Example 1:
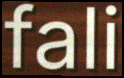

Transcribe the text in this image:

fali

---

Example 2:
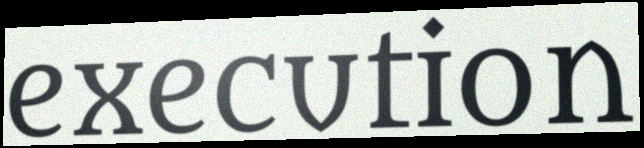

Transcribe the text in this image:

execution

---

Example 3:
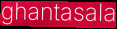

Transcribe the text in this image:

ghantasala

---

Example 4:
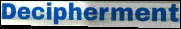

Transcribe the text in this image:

Decipherment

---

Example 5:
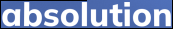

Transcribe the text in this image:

absolution